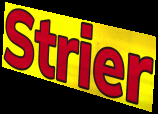
Strier